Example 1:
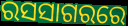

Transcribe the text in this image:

ରସସାଗରରେ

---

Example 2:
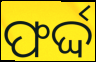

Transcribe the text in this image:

ଫର୍ଦ୍ଦ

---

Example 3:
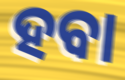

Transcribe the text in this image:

ହବା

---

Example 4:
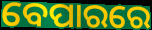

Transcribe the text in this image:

ବେପାରରେ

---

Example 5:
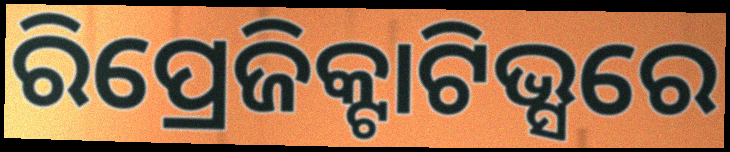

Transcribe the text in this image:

ରିପ୍ରେଜିକ୍ଟାଟିଭ୍ସରେ